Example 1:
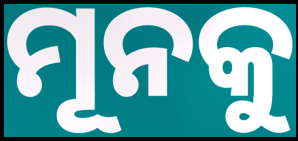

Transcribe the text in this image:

ମୂନକୁ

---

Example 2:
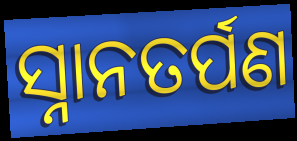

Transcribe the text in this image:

ସ୍ନାନତର୍ପଣ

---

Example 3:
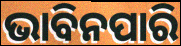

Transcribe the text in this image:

ଭାବିନପାରି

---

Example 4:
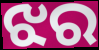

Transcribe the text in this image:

ଝର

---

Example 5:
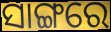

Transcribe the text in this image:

ସାଙ୍ଗରେ